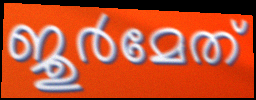
ജുർമേത്